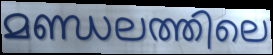
മണ്ഡലത്തിലെ